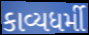
કાવ્યધર્મી